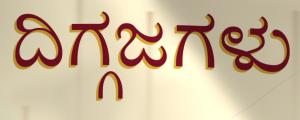
ದಿಗ್ಗಜಗಳು